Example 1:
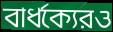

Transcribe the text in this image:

বার্ধক্যেরও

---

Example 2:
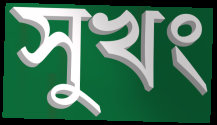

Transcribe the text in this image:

সুখং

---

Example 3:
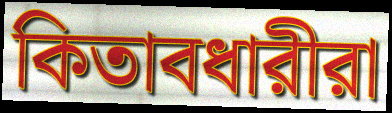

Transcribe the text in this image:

কিতাবধারীরা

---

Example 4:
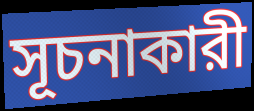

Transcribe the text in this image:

সূচনাকারী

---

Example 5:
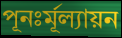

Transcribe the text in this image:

পূনঃর্মূল্যায়ন